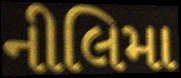
નીલિમા